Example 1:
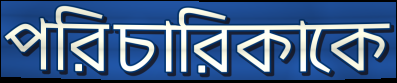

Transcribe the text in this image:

পরিচারিকাকে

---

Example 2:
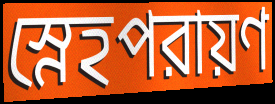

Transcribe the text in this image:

স্নেহপরায়ণ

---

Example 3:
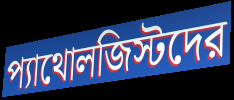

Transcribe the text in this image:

প্যাথোলজিস্টদের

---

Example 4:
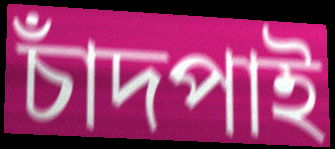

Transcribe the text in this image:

চাঁদপাই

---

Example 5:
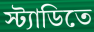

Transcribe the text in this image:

স্ট্যাডিতে